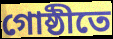
গোষ্ঠীতে